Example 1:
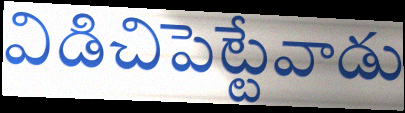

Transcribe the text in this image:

విడిచిపెట్టేవాడు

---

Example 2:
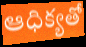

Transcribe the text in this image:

ఆధిక్యతో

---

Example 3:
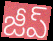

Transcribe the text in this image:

జీప్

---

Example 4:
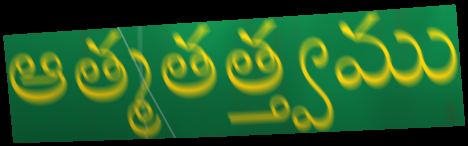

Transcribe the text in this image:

ఆత్మతత్త్వము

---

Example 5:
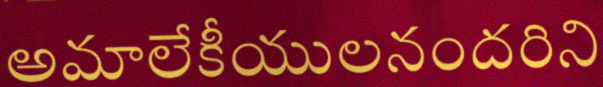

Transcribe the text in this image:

అమాలేకీయులనందరిని